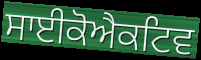
ਸਾਈਕੋਐਕਟਿਵ